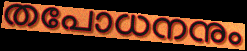
തപോധനനും